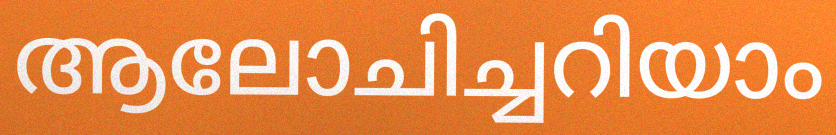
ആലോചിച്ചറിയാം